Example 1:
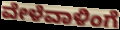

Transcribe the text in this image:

ವೇಳೆವಾಳಿಂಗೆ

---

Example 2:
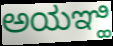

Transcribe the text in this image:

ಅಯಞ್ಹಿ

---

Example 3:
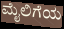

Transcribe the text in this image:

ಮೈಲಿಗೆಯ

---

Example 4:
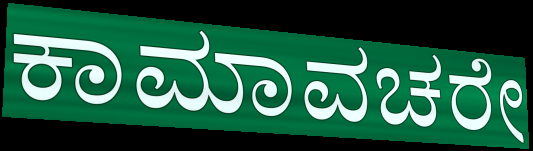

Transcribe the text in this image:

ಕಾಮಾವಚರೇ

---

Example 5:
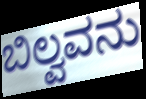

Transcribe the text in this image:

ಬಿಲ್ವವನು